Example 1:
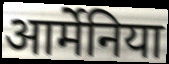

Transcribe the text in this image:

आर्मेनिया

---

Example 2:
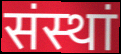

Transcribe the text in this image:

संस्थां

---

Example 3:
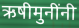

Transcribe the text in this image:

ऋषीमुनींनी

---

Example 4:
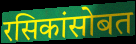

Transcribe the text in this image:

रसिकांसोबत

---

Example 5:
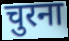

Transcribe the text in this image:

चुरना